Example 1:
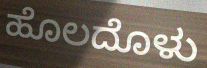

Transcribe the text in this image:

ಹೊಲದೊಳು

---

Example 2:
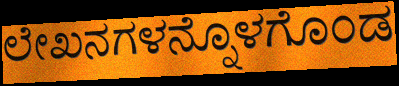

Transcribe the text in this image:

ಲೇಖನಗಳನ್ನೊಳಗೊಂಡ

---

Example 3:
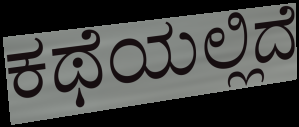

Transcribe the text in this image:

ಕಥೆಯಲ್ಲಿದೆ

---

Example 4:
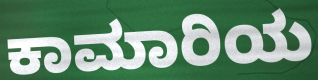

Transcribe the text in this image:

ಕಾಮಾರಿಯ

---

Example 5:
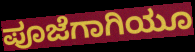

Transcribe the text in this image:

ಪೂಜೆಗಾಗಿಯೂ